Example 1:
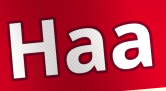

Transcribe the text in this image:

Haa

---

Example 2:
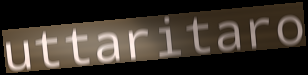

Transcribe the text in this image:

uttaritaro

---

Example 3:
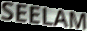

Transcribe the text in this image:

SEELAM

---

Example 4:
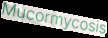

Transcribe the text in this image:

Mucormycosis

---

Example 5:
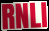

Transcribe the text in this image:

RNLI